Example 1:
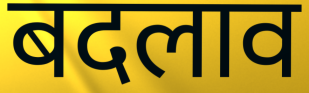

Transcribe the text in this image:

बदलाव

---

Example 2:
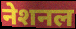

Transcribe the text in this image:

नेशनल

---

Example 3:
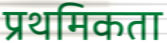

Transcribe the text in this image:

प्रथमिकता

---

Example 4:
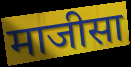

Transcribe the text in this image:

माजीसा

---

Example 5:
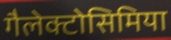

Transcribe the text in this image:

गैलेक्टोसिमिया